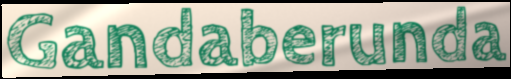
Gandaberunda